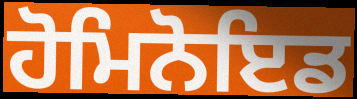
ਹੋਮਿਨੋਇਡ